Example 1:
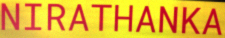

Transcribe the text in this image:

NIRATHANKA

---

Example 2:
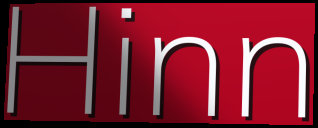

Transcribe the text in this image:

Hinn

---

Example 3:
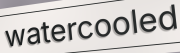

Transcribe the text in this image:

watercooled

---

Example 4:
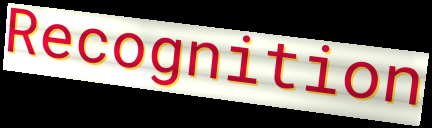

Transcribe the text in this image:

Recognition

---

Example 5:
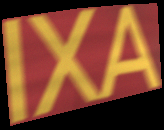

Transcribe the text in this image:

IXA